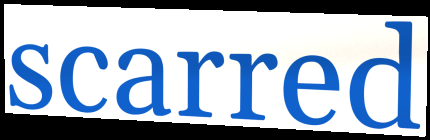
scarred